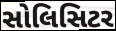
સોલિસિટર